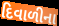
દિવાળીના